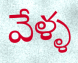
వేళ్ళ